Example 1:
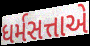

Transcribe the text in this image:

ધર્મસત્તાએ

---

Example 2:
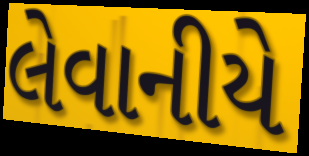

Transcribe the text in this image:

લેવાનીયે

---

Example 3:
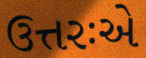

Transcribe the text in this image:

ઉત્તરઃએ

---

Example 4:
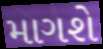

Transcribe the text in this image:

માગશે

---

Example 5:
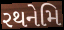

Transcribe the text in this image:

રથનેમિ